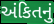
અંકિતનું